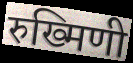
रुख्मिणी